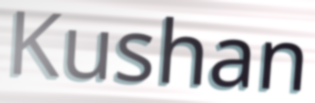
Kushan